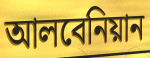
আলবেনিয়ান